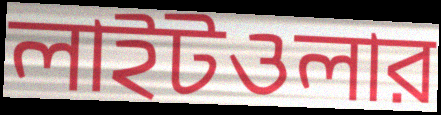
লাইটওলার